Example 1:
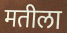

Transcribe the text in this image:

मतीला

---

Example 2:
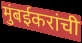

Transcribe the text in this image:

मुंबईकरांची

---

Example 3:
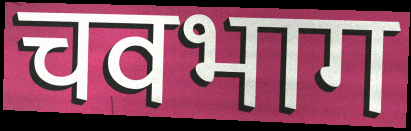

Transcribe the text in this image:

चवभाग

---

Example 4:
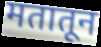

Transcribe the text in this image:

मतातून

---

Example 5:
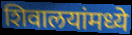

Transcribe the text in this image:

शिवालयांमध्ये